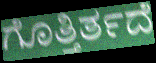
ಗೊತ್ತಿರ್ತದೆ